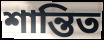
শান্তিত